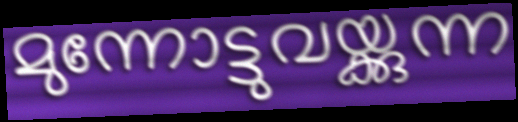
മുന്നോട്ടുവയ്ക്കുന്ന